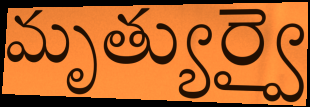
మృత్యుర్వై